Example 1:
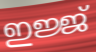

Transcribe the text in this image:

ഇജ്ജ്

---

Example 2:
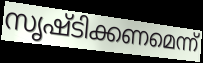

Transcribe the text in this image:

സൃഷ്ടിക്കണമെന്ന്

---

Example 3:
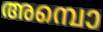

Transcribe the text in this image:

അമ്പൊ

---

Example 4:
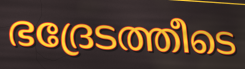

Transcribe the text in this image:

ഭദ്രേടത്തീടെ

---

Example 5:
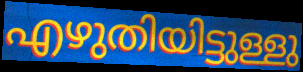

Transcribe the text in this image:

എഴുതിയിട്ടുള്ളു